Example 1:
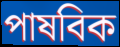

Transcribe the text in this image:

পাষবিক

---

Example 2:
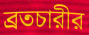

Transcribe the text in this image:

ব্রতচারীর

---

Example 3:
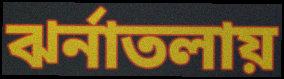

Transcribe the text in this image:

ঝর্নাতলায়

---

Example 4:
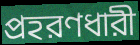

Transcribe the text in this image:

প্রহরণধারী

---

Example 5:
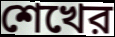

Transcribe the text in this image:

শেখের